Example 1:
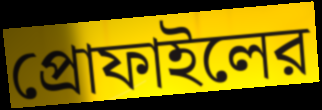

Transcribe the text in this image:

প্রোফাইলের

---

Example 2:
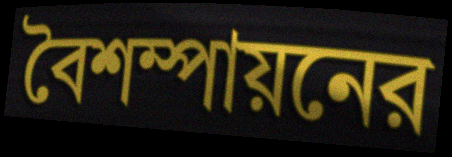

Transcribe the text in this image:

বৈশম্পায়নের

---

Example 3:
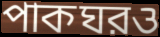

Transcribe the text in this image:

পাকঘরও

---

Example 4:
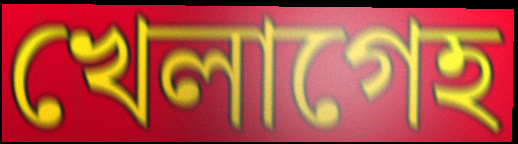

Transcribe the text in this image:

খেলাগেহ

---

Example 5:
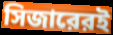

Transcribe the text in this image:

সিজারেরই